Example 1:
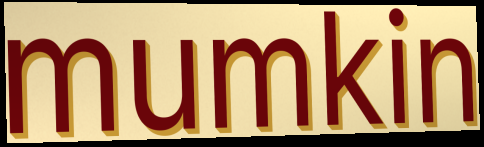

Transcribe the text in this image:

mumkin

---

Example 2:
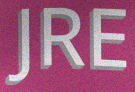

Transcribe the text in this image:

JRE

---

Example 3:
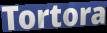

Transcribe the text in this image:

Tortora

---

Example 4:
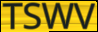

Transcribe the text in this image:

TSWV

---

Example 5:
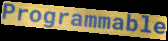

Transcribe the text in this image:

Programmable